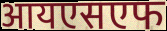
आयएसएफ